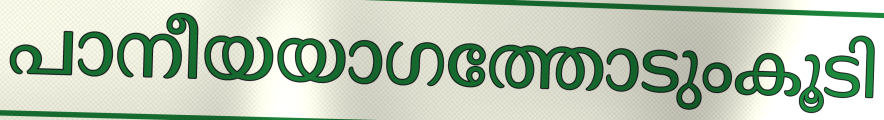
പാനീയയാഗത്തോടുംകൂടി